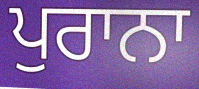
ਪੁਰਾਨਾ